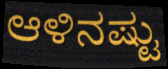
ಆಳಿನಷ್ಟು